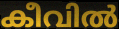
കീവിൽ